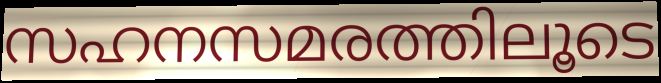
സഹനസമരത്തിലൂടെ